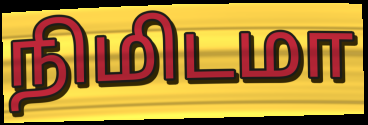
நிமிடமா